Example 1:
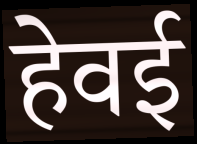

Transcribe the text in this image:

हेवई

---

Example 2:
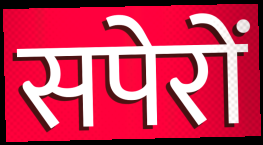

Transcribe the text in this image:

सपेरों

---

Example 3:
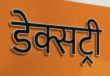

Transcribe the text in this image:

डेक्सट्री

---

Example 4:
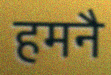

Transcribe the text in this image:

हमनै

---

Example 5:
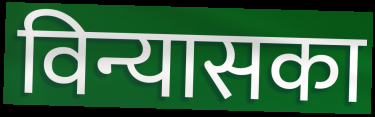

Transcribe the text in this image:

विन्यासका